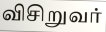
விசிறுவர்